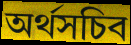
অর্থসচিব